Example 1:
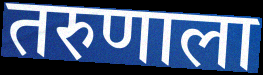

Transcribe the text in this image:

तरुणाला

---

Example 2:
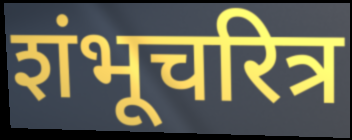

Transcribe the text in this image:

शंभूचरित्र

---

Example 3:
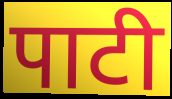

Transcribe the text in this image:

पाटी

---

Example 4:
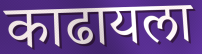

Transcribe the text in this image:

काढायला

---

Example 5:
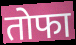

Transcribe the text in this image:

तोफा